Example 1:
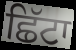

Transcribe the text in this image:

ਛਿੱਟਾ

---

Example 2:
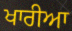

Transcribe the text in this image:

ਖਾਰੀਆ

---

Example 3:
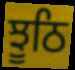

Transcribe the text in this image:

ਝੂਠਿ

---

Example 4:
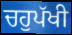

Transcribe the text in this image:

ਚਹੁਪੱਖੀ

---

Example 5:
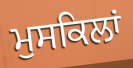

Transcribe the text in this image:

ਮੁਸਕਿਲਾਂ